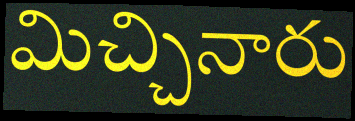
మిచ్చినారు